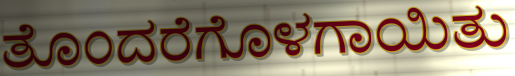
ತೊಂದರೆಗೊಳಗಾಯಿತು